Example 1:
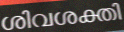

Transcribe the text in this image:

ശിവശക്തി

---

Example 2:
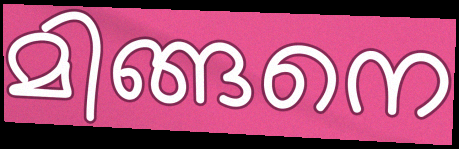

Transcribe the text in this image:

മിങ്ങനെ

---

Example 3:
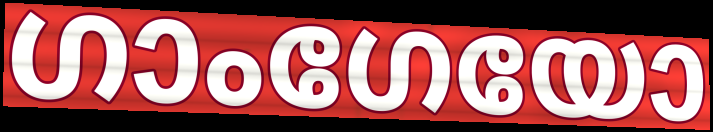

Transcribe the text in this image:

ഗാംഗേയോ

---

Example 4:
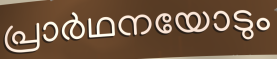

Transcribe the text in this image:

പ്രാർഥനയോടും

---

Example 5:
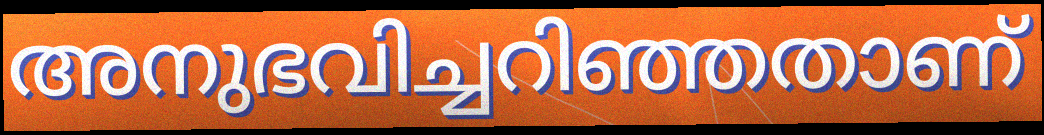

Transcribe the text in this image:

അനുഭവിച്ചറിഞ്ഞതാണ്